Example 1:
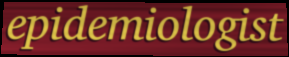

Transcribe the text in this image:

epidemiologist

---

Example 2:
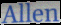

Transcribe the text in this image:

Allen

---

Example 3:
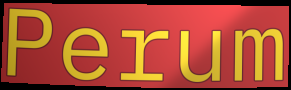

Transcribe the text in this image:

Perum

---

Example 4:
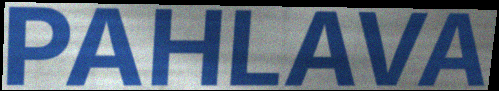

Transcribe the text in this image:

PAHLAVA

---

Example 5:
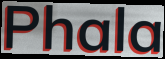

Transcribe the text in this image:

Phala